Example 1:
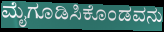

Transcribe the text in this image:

ಮೈಗೂಡಿಸಿಕೊಂಡವನು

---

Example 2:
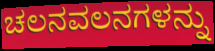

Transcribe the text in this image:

ಚಲನವಲನಗಳನ್ನು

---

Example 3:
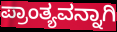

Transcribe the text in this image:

ಪ್ರಾಂತ್ಯವನ್ನಾಗಿ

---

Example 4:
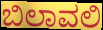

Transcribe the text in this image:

ಬಿಲಾವಲಿ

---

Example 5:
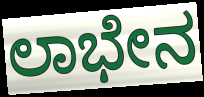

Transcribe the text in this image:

ಲಾಭೇನ